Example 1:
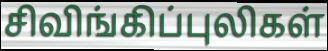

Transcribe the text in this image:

சிவிங்கிப்புலிகள்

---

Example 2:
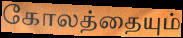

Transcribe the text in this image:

கோலத்தையும்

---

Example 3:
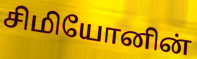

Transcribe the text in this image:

சிமியோனின்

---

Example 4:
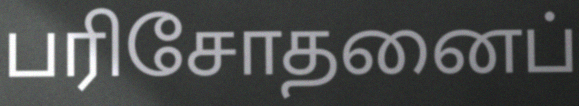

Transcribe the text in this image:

பரிசோதனைப்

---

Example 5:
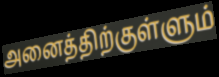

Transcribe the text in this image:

அனைத்திற்குள்ளும்